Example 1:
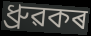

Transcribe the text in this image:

ধ্ৰুৱকৰ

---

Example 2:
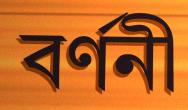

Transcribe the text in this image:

বৰ্ণনী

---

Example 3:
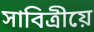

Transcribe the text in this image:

সাবিত্ৰীয়ে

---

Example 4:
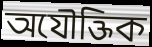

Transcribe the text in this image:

অযৌক্তিক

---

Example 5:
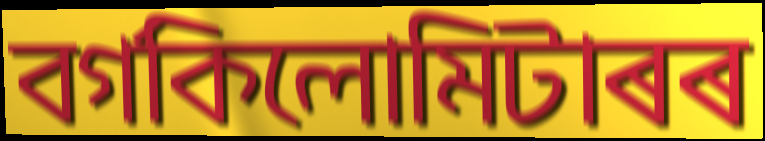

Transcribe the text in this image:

বৰ্গকিলোমিটাৰৰ